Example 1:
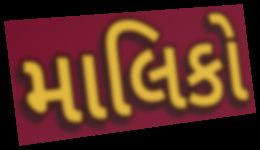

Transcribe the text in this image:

માલિકો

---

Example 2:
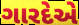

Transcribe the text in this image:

ગારદેએ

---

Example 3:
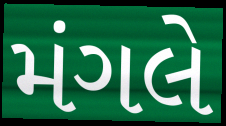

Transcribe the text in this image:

મંગલે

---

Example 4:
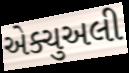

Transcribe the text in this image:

એક્ચુઅલી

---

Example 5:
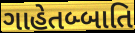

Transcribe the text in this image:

ગાહેતબ્બાતિ